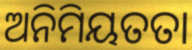
ଅନିମିୟତତା